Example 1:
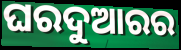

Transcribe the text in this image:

ଘରଦୁଆରର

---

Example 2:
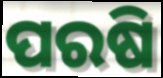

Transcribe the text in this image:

ପରଷି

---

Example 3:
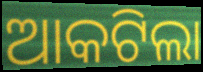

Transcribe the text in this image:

ଆକଟିଲା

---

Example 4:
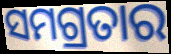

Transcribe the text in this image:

ସମଗ୍ରତାର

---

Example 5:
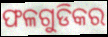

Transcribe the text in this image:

ଫଳଗୁଡିକର